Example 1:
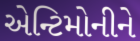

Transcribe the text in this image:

એન્ટિમોનીને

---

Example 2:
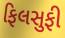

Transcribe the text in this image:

ફિલસુફી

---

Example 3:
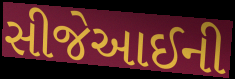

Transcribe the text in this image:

સીજેઆઈની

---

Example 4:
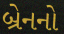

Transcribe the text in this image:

બ્રેનનો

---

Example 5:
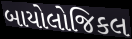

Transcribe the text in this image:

બાયોલોજિકલ